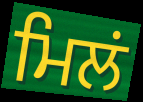
ਮਿਲਂ